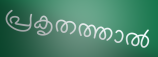
പ്രകൃതത്താൽ